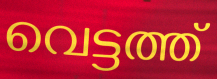
വെട്ടത്ത്